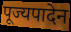
पूज्यपादेन